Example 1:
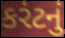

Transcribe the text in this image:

કરંટનું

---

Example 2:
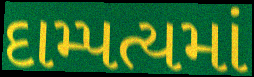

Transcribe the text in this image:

દામ્પત્યમાં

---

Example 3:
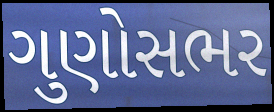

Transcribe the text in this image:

ગુણોસભર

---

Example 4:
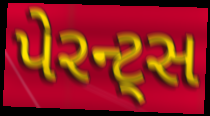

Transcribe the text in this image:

પેરન્ટ્સ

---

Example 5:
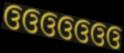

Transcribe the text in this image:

ઉઉઉઉઉઉઉ